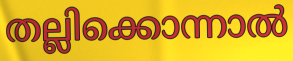
തല്ലിക്കൊന്നാൽ